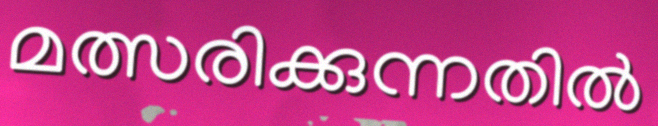
മത്സരിക്കുന്നതിൽ